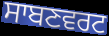
ਸਾਬਣਵਰਟ